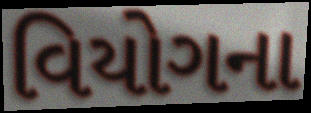
વિયોગના